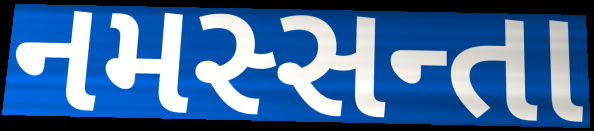
નમસ્સન્તા